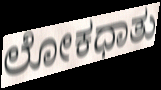
ಲೋಕಧಾತು